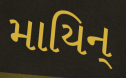
માયિન્